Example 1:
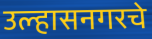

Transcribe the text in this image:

उल्हासनगरचे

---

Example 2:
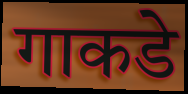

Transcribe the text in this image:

गाकडे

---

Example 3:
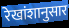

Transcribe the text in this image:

रेखांशानुसार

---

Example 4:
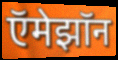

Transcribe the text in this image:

ऍमेझॉन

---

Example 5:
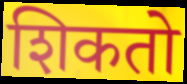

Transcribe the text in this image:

शिकतो